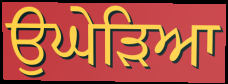
ਉਘੇੜਿਆ